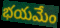
భయమేం